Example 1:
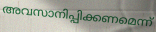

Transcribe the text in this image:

അവസാനിപ്പിക്കണമെന്ന്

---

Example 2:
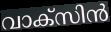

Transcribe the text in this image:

വാക്സിൻ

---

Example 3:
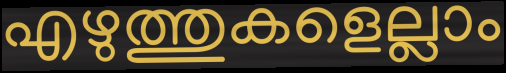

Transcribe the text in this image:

എഴുത്തുകളെല്ലാം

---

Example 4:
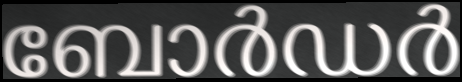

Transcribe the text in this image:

ബോർഡർ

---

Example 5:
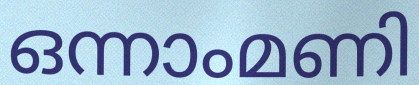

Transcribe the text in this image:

ഒന്നാംമണി